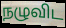
நழுவிட